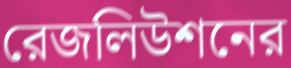
রেজলিউশনের